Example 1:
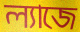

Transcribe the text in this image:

ল্যাজে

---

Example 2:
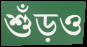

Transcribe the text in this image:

শুঁড়ও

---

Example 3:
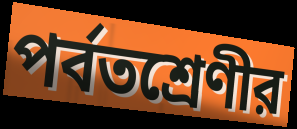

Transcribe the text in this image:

পর্বতশ্রেণীর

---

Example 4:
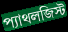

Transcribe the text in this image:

প্যাথলজিস্ট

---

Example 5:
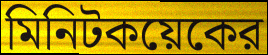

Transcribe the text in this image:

মিনিটকয়েকের